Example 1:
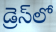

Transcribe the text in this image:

డ్రెస్‌లో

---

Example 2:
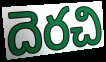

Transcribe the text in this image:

దెరచి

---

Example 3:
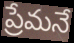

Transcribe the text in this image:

ప్రేమనే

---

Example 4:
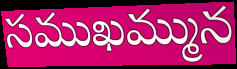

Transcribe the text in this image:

సముఖమ్మున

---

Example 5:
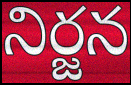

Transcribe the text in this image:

నిర్జన